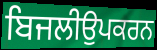
ਬਿਜਲੀਉਪਕਰਨ